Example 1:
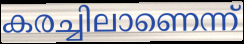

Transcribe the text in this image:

കരച്ചിലാണെന്ന്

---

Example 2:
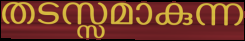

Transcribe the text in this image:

തടസ്സമാകുന്ന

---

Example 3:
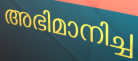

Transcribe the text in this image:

അഭിമാനിച്ച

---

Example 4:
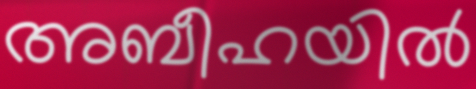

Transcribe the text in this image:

അബീഹയിൽ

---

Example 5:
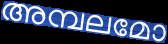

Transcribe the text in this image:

അമ്പലമോ